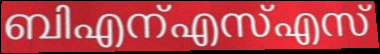
ബിഎന്എസ്എസ്